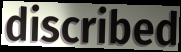
discribed